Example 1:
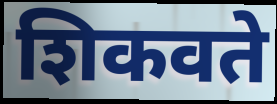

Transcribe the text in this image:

शिकवते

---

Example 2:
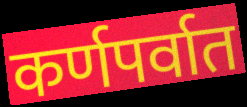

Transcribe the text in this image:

कर्णपर्वात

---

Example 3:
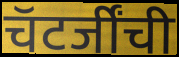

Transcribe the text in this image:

चॅटर्जींची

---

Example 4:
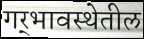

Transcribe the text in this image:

गर्भावस्थेतील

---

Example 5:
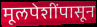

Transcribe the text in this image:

मूलपेशींपासून